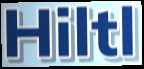
Hiltl